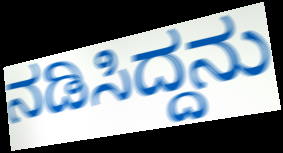
ನಡಿಸಿದ್ದನು